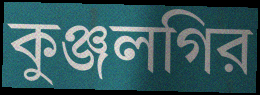
কুঞ্জলগির